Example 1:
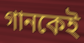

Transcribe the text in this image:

গানকেই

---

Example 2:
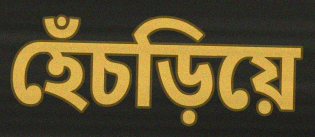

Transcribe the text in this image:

হেঁচড়িয়ে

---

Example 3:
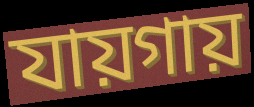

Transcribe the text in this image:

যায়গায়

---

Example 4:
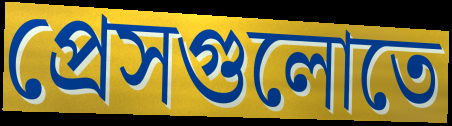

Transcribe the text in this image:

প্রেসগুলোতে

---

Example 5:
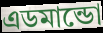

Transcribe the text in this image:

এডমান্ডো